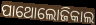
ପାଥୋଲୋଜିକାଲ